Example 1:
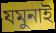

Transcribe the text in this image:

যমুনাই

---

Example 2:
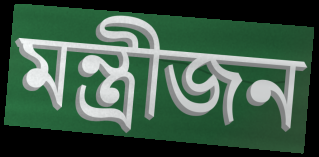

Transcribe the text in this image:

মন্ত্ৰীজন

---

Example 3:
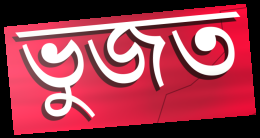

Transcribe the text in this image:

ভুজত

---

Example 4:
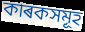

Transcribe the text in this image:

কাৰকসমূহ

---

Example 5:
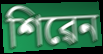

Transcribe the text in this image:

শিৱেন